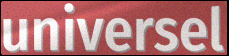
universel